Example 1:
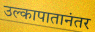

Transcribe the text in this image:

उल्कापातानंतर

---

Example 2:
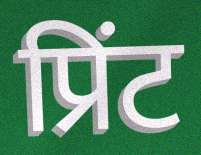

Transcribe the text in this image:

प्रिंट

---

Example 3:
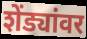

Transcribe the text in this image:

शेंड्यांवर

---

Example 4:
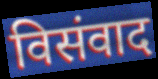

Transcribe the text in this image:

विसंवाद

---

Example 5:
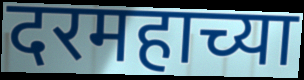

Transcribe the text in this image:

दरमहाच्या